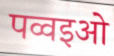
पव्वइओ